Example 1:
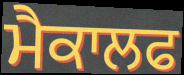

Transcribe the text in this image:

ਮੈਕਾਲਫ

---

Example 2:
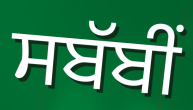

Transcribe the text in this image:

ਸਬੱਬੀਂ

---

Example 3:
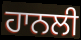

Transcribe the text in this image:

ਹਾਨਲੀ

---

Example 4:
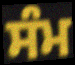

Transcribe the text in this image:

ਸੰਮ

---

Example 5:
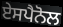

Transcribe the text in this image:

ਏਸਪੈਨੋਲ